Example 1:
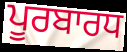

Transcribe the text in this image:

ਪੂਰਬਾਰਧ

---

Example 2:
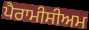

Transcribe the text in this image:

ਪੈਰਾਮੀਸੀਅਮ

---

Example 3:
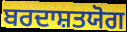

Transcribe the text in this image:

ਬਰਦਾਸ਼ਤਯੋਗ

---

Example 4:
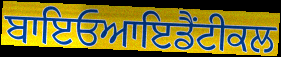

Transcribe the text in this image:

ਬਾਇਓਆਇਡੈਂਟੀਕਲ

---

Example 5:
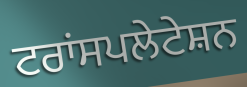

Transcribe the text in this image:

ਟਰਾਂਸਪਲੇਟੇਸ਼ਨ